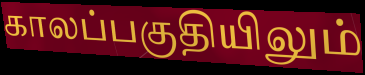
காலப்பகுதியிலும்